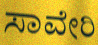
ಸಾವೇರಿ